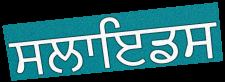
ਸਲਾਇਡਸ